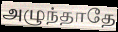
அழுந்தாதே